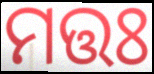
ମତ୍ତଃ